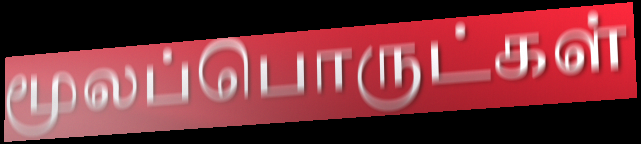
மூலப்பொருட்கள்